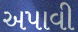
અપાવી